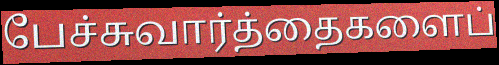
பேச்சுவார்த்தைகளைப்